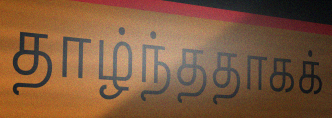
தாழ்ந்ததாகக்